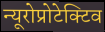
न्यूरोप्रोटेक्टिव